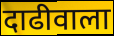
दाढीवाला